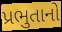
પ્રભુતાનો